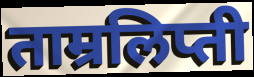
ताम्रलिप्ती